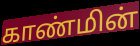
காண்மின்